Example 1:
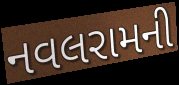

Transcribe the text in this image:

નવલરામની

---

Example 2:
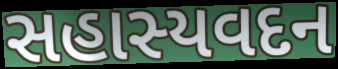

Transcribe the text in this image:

સહાસ્યવદન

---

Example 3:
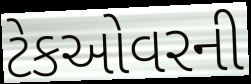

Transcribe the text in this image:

ટેકઓવરની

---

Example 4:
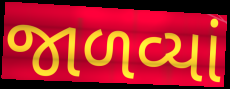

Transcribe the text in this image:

જાળવ્યાં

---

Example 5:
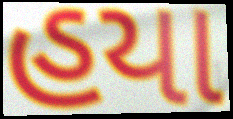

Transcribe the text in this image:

હયા